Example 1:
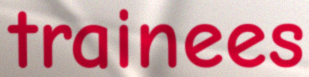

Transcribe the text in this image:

trainees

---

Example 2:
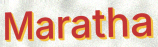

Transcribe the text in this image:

Maratha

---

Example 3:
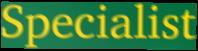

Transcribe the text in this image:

Specialist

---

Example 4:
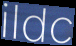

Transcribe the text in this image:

ildc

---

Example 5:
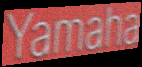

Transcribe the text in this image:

Yamaha